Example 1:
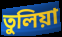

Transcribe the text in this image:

তুলিয়া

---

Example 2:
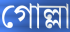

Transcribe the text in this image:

গোল্লা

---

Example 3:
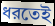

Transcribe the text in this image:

ধরতেই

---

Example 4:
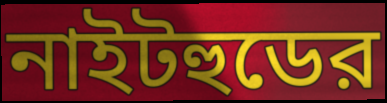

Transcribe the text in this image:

নাইটহুডের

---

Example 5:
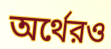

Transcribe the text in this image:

অর্থেরও